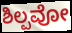
ಶಿಲ್ಪವೋ